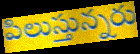
పిలుస్తున్నరు